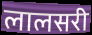
लालसरी